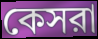
কেসরা